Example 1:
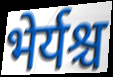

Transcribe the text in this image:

भेर्यश्च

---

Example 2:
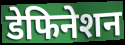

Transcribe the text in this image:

डेफिनेशन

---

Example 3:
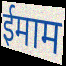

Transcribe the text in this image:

ईमाम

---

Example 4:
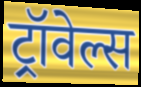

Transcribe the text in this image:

ट्रॉवेल्स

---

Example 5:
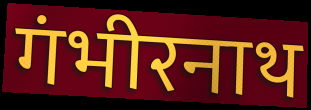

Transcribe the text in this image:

गंभीरनाथ